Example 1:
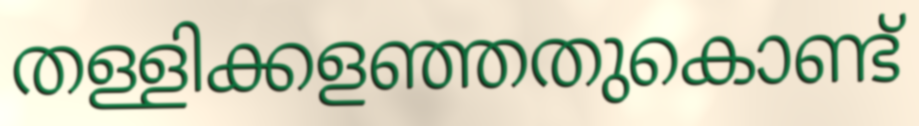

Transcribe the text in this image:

തള്ളിക്കളഞ്ഞതുകൊണ്ട്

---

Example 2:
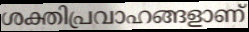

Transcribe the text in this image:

ശക്തിപ്രവാഹങ്ങളാണ്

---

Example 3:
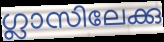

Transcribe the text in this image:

ഗ്ലാസിലേക്കു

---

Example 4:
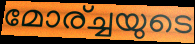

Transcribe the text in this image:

മോര്ച്ചയുടെ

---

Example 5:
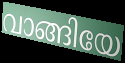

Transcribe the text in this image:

വാങ്ങിയേ